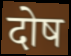
दोष